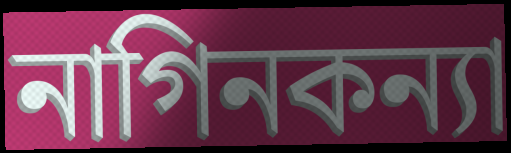
নাগিনকন্যা